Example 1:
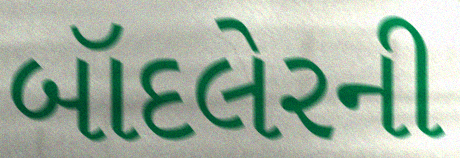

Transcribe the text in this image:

બૉદલેરની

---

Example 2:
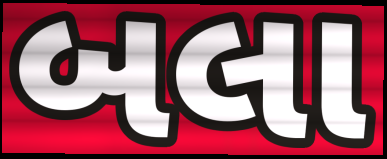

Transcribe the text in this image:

બલા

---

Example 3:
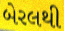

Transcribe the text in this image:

બેરલથી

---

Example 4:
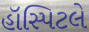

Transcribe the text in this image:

હૉસ્પિટલે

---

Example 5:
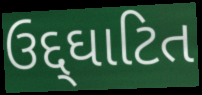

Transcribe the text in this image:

ઉદ્દ્ઘાટિત